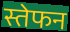
स्तेफन